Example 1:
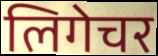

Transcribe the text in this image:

लिगेचर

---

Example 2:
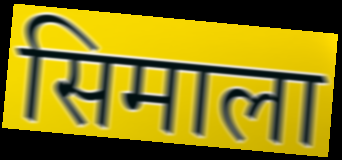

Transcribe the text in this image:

सिमाला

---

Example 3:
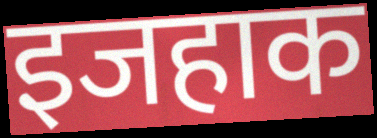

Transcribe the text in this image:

इजहाक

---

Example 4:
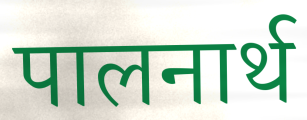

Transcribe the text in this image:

पालनार्थ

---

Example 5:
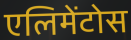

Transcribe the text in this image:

एलिमेंटोस